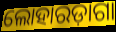
ଲୋହାରଡ଼ାଗା